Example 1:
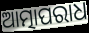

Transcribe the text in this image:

ଆତ୍ମାପରାଧ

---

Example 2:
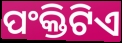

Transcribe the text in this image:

ପଂକ୍ତିଟିଏ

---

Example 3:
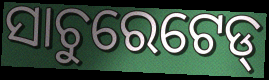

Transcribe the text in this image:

ସାଚୁରେଟେଡ୍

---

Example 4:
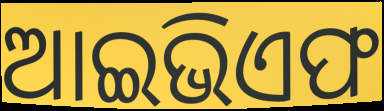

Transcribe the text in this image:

ଆଇଭିଏଫ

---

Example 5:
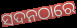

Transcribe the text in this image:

ସଦନଠାରେ